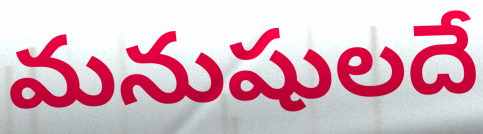
మనుషులదే